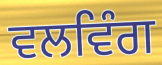
ਵਲਵਿੰਗ